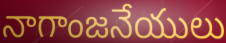
నాగాంజనేయులు